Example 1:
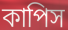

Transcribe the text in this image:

কাপিস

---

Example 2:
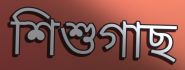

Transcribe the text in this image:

শিশুগাছ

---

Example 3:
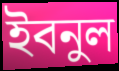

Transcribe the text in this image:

ইবনুল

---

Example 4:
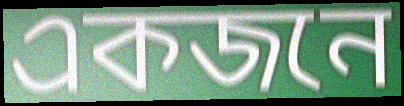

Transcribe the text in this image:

একজনে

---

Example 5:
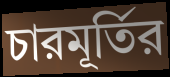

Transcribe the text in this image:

চারমূর্তির